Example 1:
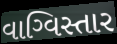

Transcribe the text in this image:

વાગ્વિસ્તાર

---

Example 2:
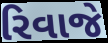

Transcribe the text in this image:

રિવાજે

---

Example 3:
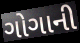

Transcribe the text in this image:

ગોગાની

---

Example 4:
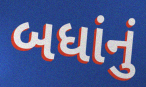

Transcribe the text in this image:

બધાંનું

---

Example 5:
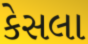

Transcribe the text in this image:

કેસલા